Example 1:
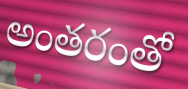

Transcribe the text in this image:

అంతరంతో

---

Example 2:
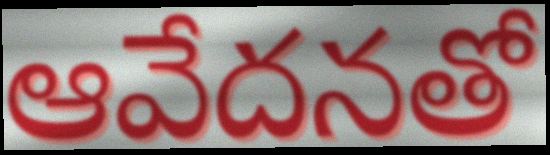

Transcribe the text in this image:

ఆవేదనతో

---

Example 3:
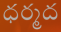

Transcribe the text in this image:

ధర్మద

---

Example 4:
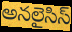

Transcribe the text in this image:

అనలైసిస్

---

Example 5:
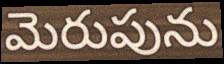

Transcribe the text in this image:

మెరుపును